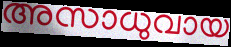
അസാധുവായ